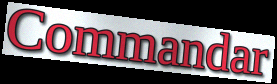
Commandar